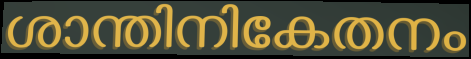
ശാന്തിനികേതനം